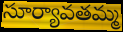
సూర్యావతమ్మ